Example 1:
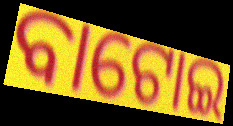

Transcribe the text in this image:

ବାଟୋଇ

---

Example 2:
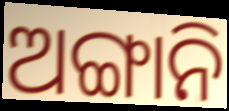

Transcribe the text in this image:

ଅଙ୍ଗାନି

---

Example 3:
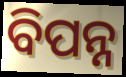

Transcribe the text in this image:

ବିପନ୍ନ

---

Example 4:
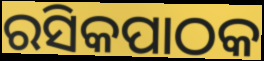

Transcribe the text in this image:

ରସିକପାଠକ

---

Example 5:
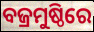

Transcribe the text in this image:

ବଜ୍ରମୁଷ୍ଠିରେ